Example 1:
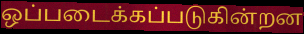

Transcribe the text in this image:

ஒப்படைக்கப்படுகின்றன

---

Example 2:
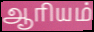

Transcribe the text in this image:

ஆரியம்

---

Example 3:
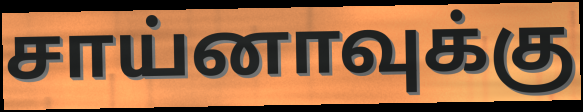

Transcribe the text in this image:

சாய்னாவுக்கு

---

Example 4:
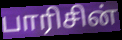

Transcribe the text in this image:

பாரிசின்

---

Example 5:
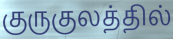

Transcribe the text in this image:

குருகுலத்தில்